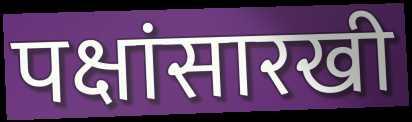
पक्षांसारखी